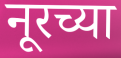
नूरच्या